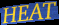
HEAT